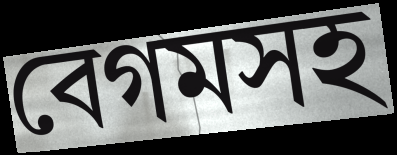
বেগমসহ